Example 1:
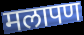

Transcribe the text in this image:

मलापण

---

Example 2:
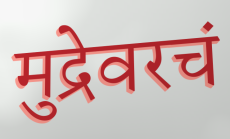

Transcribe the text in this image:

मुद्रेवरचं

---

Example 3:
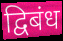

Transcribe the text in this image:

द्विबंध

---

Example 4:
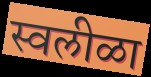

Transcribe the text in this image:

स्वलीळा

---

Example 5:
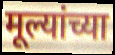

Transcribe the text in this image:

मूल्यांच्या